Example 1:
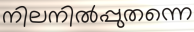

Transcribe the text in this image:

നിലനിൽപ്പുതന്നെ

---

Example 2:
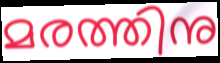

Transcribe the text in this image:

മരത്തിനു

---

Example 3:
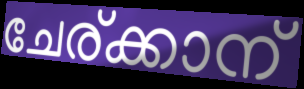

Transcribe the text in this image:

ചേര്ക്കാന്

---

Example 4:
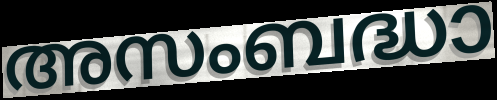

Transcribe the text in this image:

അസംബദ്ധാ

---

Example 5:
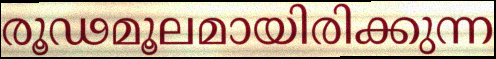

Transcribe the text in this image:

രൂഢമൂലമായിരിക്കുന്ന